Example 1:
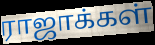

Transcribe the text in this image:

ராஜாக்கள்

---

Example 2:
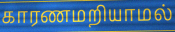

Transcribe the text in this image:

காரணமறியாமல்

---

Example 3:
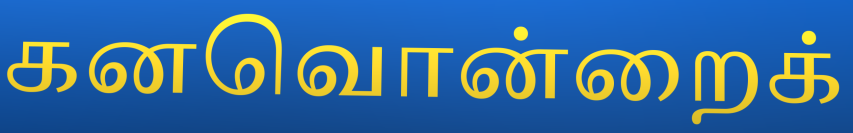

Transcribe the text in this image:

கனவொன்றைக்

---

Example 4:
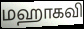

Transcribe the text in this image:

மஹாகவி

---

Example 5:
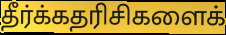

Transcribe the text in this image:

தீர்க்கதரிசிகளைக்